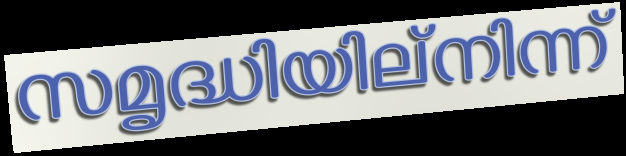
സമൃദ്ധിയില്നിന്ന്